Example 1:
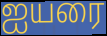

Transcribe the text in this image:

ஐயரை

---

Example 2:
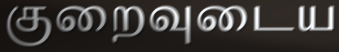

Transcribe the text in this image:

குறைவுடைய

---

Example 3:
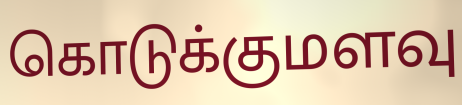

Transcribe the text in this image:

கொடுக்குமளவு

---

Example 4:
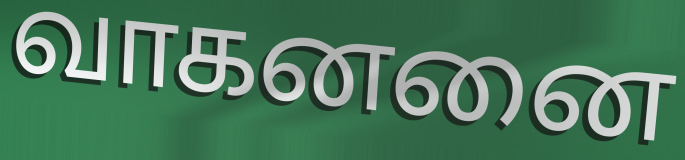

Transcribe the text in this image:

வாகனனை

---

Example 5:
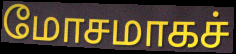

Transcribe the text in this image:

மோசமாகச்